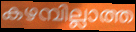
കഴമ്പില്ലാത്ത